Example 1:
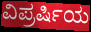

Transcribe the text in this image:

ವಿಪ್ರರ್ಷಿಯ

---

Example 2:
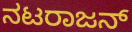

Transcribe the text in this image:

ನಟರಾಜನ್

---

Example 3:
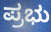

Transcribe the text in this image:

ಪ್ರಭು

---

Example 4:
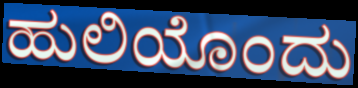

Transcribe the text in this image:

ಹುಲಿಯೊಂದು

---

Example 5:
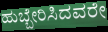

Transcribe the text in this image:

ಹುಬ್ಬೇರಿಸಿದವರೇ